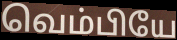
வெம்பியே